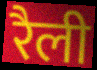
रैली